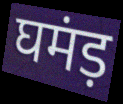
घमंड़